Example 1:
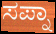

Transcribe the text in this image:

ಸಪ್ನಾ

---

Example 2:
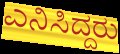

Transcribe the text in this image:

ಎನಿಸಿದ್ದರು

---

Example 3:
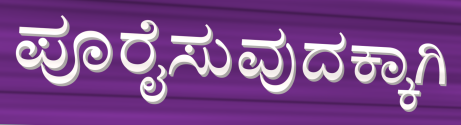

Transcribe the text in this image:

ಪೂರೈಸುವುದಕ್ಕಾಗಿ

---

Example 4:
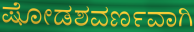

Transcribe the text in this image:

ಷೋಡಶವರ್ಣವಾಗಿ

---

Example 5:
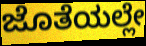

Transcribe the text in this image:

ಜೊತೆಯಲ್ಲೇ